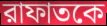
রাফাতকে